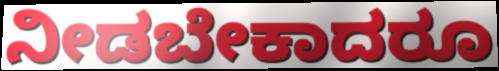
ನೀಡಬೇಕಾದರೂ